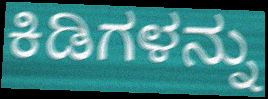
ಕಿಡಿಗಳನ್ನು